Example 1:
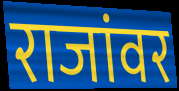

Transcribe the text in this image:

राजांवर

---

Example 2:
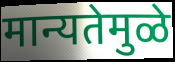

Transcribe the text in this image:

मान्यतेमुळे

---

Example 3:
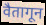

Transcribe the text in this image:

वैतागून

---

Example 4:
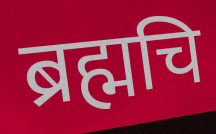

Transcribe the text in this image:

ब्रह्मचि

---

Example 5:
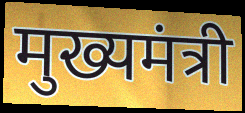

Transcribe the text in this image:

मुख्यमंत्री